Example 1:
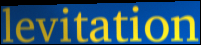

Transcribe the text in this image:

levitation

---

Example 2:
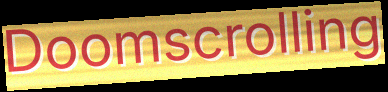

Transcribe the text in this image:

Doomscrolling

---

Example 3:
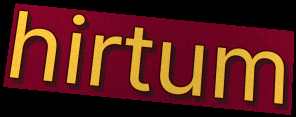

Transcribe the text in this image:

hirtum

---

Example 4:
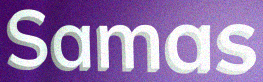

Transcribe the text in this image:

Samas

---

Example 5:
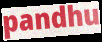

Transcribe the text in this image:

pandhu